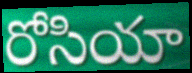
రోసియా